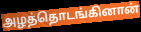
அழத்தொடங்கினான்